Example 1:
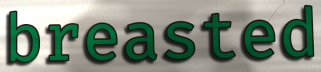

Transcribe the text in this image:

breasted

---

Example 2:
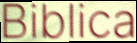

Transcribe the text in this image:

Biblica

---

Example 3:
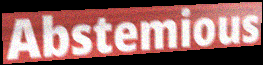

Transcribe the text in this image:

Abstemious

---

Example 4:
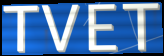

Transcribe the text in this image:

TVET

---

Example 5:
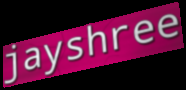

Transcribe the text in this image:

jayshree